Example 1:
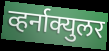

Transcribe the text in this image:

व्हर्नाक्युलर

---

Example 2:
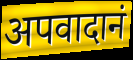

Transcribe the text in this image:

अपवादानं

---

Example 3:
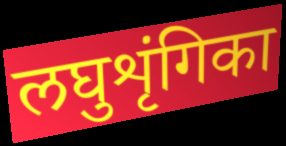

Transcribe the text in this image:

लघुशृंगिका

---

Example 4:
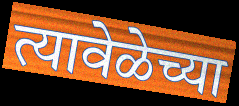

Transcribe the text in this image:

त्यावेळेच्या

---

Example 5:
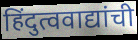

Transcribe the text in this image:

हिंदुत्ववाद्यांची